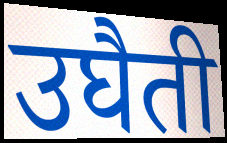
उघैती